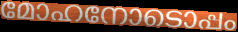
മോഹനോടൊപ്പം